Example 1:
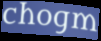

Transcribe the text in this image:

chogm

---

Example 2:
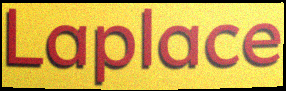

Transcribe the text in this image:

Laplace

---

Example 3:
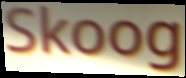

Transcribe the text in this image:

Skoog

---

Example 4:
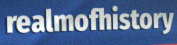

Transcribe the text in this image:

realmofhistory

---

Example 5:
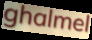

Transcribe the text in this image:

ghalmel